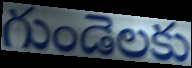
గుండెలకు